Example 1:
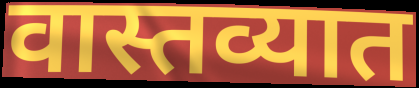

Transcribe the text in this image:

वास्तव्यात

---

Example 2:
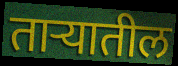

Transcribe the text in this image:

ताऱ्यातील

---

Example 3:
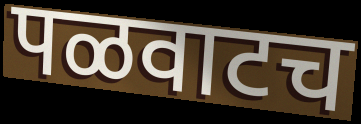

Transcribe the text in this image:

पळवाटच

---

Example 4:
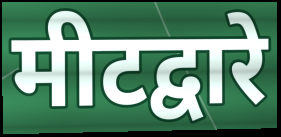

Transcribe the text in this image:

मीटद्वारे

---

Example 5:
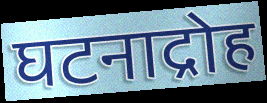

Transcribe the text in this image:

घटनाद्रोह